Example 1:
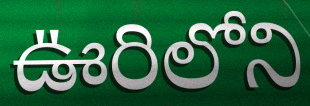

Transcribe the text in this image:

ఊరిలోని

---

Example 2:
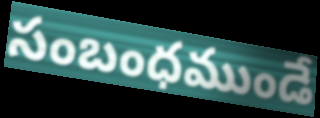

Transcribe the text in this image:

సంబంధముండే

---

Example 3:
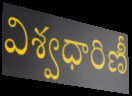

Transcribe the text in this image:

విశ్వధారిణీ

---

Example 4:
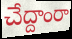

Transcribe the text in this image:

చేద్దాంరా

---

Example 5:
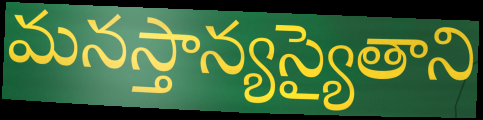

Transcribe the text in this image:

మనస్తాన్యస్యైతాని